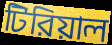
টিরিয়াল